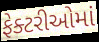
ફેક્ટરીઓમાં